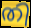
തി